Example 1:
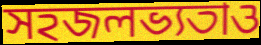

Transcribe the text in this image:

সহজলভ্যতাও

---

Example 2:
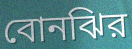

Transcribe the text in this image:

বোনঝির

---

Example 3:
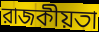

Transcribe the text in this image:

রাজকীয়তা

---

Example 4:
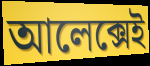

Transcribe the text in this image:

আলেক্সেই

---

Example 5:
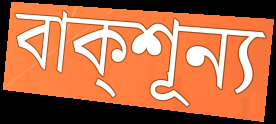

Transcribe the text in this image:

বাক্শূন্য